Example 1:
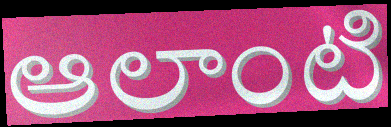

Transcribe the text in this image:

ఆలాంటి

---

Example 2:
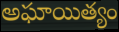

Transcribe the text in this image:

అఘాయిత్యం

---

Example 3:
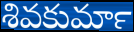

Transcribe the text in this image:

శివకుమార్‍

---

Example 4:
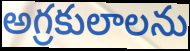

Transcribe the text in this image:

అగ్రకులాలను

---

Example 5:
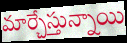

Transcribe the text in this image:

మార్చేస్తున్నాయి